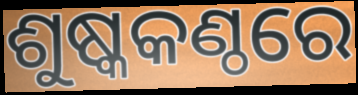
ଶୁଷ୍କକଣ୍ଠରେ